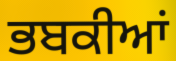
ਭਬਕੀਆਂ